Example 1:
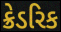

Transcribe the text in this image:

ક્રેડરિક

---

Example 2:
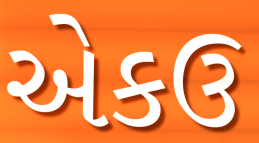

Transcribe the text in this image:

એકઉ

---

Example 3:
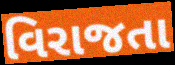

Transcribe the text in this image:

વિરાજતા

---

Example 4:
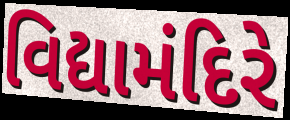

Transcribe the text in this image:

વિદ્યામંદિરે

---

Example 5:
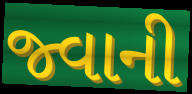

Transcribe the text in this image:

જ્વાની